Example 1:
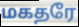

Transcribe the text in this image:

மகதரே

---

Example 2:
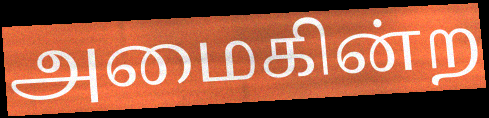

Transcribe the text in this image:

அமைகின்ற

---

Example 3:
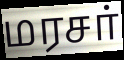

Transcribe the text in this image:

மரசர்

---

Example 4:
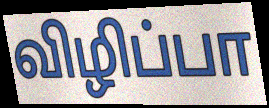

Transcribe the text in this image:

விழிப்பா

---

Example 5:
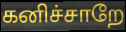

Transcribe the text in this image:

கனிச்சாறே